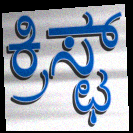
ಕ್ರಿಸ್ಟ್